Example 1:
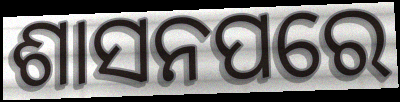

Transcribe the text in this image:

ଶାସନପରେ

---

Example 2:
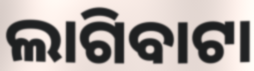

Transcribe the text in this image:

ଲାଗିବାଟା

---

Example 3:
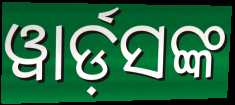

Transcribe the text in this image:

ୱାର୍ଡ଼ସଙ୍କ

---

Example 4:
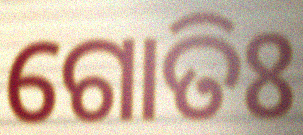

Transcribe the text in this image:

ଗୋତିଃ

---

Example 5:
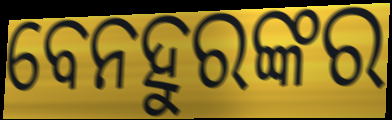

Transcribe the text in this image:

ବେନହୁରଙ୍କର